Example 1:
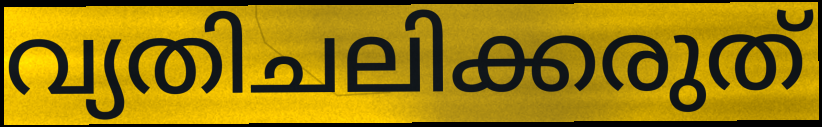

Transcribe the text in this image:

വ്യതിചലിക്കരുത്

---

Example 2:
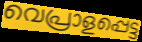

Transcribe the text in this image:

വെപ്രാളപ്പെട്ട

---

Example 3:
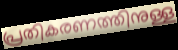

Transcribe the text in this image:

പ്രതികരണത്തിനുള്ള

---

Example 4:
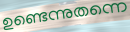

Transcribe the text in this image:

ഉണ്ടെന്നുതന്നെ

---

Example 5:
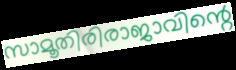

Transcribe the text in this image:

സാമൂതിരിരാജാവിന്റെ